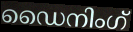
ഡൈനിംഗ്